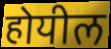
होयील